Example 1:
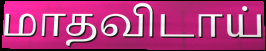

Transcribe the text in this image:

மாதவிடாய்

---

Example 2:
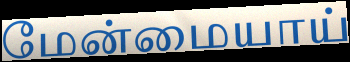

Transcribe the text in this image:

மேன்மையாய்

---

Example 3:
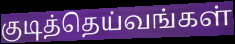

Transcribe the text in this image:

குடித்தெய்வங்கள்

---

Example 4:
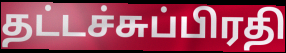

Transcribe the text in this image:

தட்டச்சுப்பிரதி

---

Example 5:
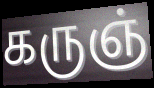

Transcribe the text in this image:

கருஞ்